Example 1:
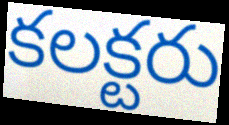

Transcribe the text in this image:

కలక్టరు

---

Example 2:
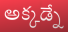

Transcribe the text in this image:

అక్కడ్నే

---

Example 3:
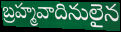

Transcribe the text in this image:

బ్రహ్మవాదినులైన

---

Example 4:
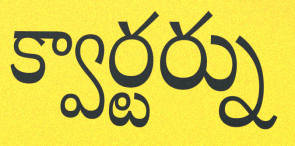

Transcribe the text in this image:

క్వార్టర్ను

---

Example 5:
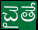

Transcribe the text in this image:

చైతే